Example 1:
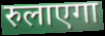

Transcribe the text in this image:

रुलाएगा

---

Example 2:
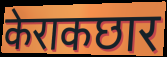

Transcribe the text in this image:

केराकछार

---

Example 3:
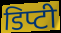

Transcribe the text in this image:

डिप्‍टी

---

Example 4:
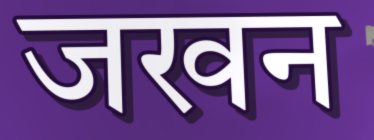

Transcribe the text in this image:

जखन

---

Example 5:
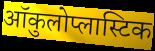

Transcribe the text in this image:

ऑकुलोप्लास्टिक